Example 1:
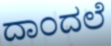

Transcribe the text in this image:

ದಾಂದಲೆ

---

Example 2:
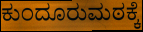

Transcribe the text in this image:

ಕುಂದೂರುಮಠಕ್ಕೆ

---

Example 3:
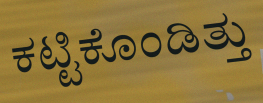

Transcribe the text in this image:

ಕಟ್ಟಿಕೊಂಡಿತ್ತು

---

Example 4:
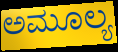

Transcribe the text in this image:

ಅಮೂಲ್ಯ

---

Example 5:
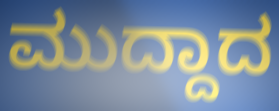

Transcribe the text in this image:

ಮುದ್ದಾದ